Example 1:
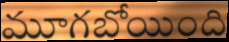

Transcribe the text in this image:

మూగబోయింది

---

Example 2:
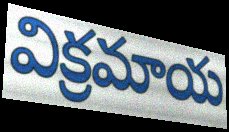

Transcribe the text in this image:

విక్రమాయ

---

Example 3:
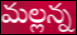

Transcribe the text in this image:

మల్లన్న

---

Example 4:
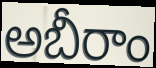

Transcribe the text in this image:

అబీరాం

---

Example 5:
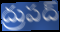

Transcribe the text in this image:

ద్రుపద్